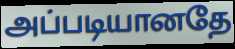
அப்படியானதே